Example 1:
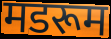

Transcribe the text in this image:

मडरूम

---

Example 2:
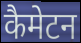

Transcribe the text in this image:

कैमेटन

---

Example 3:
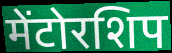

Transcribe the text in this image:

मेंटोरशिप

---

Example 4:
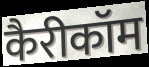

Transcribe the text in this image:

कैरीकॉम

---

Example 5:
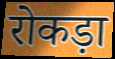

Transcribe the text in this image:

रोकड़ा